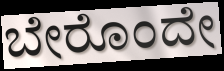
ಬೇರೊಂದೇ